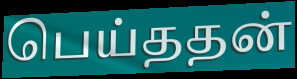
பெய்ததன்